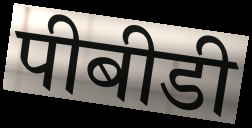
पीबीडी